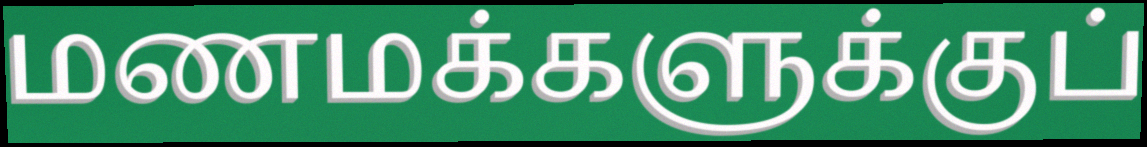
மணமக்களுக்குப்